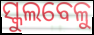
ସ୍କୁଲବେଳୁ